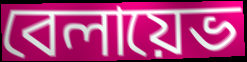
বেলায়েভ